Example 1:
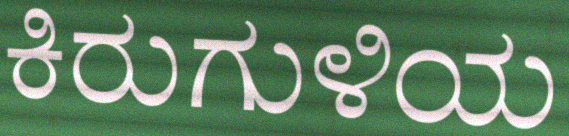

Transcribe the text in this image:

ಕಿರುಗುಳಿಯ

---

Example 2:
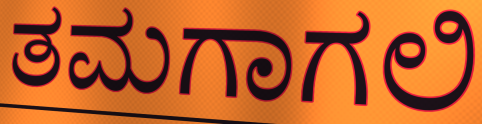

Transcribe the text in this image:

ತಮಗಾಗಲಿ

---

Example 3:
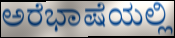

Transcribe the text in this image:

ಅರೆಭಾಷೆಯಲ್ಲಿ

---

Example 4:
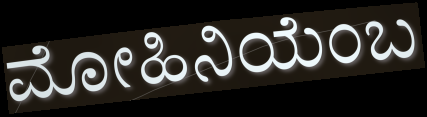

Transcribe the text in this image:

ಮೋಹಿನಿಯೆಂಬ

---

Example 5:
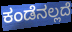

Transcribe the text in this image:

ಕಂಡೆನಲ್ಲದೆ